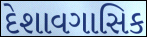
દેશાવગાસિક